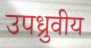
उपध्रुवीय